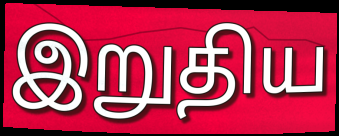
இறுதிய